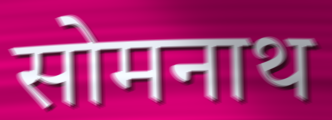
सोमनाथ